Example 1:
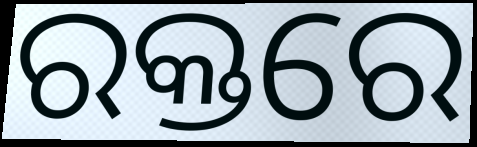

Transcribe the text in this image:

ରକ୍ତରେ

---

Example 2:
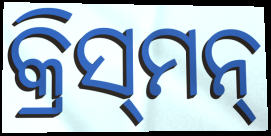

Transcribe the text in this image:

କ୍ରିସ୍‍ମନ୍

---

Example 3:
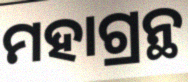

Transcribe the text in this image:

ମହାଗ୍ରନ୍ଥ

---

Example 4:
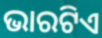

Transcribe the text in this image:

ଭାରଟିଏ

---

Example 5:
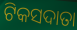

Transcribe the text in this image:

ଟିକସଦାତା